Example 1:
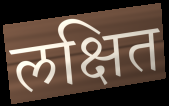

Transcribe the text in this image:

लक्षित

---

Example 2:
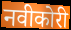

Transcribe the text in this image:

नवीकोरी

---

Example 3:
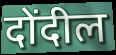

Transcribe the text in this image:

दोंदील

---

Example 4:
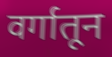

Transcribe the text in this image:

वर्गातून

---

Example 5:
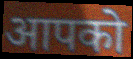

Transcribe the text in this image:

आपको